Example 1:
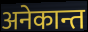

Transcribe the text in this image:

अनेकान्त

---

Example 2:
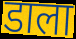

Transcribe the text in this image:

डाला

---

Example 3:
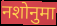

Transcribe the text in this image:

नशोनुमा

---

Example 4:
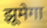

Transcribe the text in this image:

झूमेगा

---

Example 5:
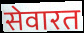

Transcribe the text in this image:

सेवारत